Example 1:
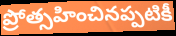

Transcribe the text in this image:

ప్రోత్సహించినప్పటికీ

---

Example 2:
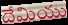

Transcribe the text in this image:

దేమియు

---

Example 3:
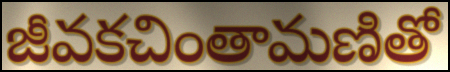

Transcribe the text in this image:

జీవకచింతామణితో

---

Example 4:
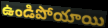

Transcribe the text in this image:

ఉండిపోయాయి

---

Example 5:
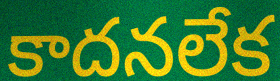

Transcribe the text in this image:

కాదనలేక